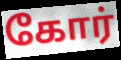
கோர்